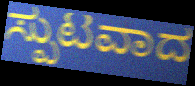
ಸ್ಪುಟವಾದ